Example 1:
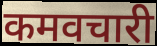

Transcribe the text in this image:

कमवचारी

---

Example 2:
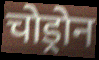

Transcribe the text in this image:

चोड्रोन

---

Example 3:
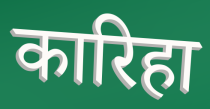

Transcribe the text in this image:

कारिहा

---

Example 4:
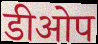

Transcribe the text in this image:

डीओप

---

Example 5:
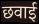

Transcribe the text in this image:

छवाई